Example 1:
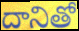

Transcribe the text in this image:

దానితో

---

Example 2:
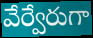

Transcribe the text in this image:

వేర్వేరుగా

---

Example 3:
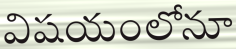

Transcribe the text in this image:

విషయంలోనూ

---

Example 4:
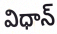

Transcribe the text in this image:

విధాన్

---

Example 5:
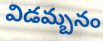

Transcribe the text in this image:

విడమ్బనం